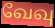
வேவு